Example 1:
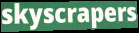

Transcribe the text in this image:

skyscrapers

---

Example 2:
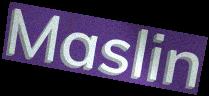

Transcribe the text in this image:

Maslin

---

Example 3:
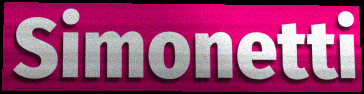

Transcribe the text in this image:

Simonetti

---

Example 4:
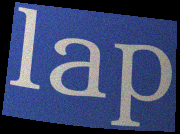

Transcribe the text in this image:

lap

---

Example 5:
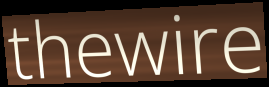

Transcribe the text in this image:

thewire